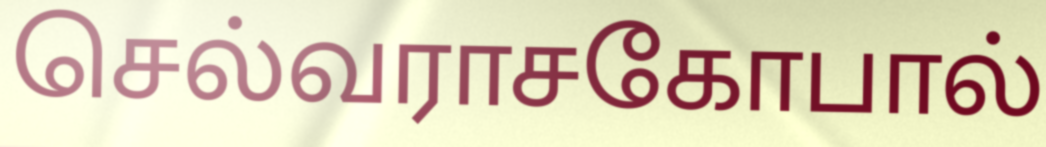
செல்வராசகோபால்